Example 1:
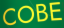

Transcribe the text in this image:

COBE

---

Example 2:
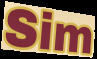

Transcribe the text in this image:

Sim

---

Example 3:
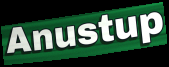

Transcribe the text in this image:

Anustup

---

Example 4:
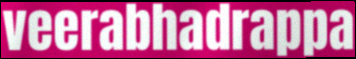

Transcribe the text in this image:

veerabhadrappa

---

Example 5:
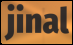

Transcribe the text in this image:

jinal